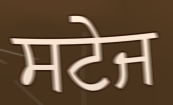
ਸਟੇਜ